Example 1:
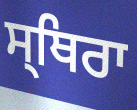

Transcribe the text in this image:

ਸ੍ਥਿਰਾ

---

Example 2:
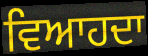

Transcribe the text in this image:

ਵਿਆਹਦਾ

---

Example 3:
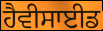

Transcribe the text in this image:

ਹੈਵੀਸਾਈਡ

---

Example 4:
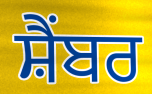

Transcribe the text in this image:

ਸ਼ੈਂਬਰ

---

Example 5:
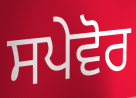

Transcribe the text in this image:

ਸਪੇਵੋਰ